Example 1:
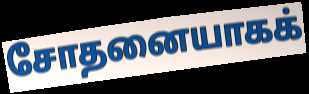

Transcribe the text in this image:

சோதனையாகக்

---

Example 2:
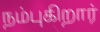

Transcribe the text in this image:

நம்புகிறார்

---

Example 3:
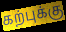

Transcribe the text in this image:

கற்புக்கு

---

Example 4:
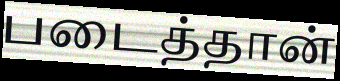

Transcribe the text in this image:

படைத்தான்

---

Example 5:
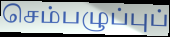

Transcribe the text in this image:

செம்பழுப்புப்